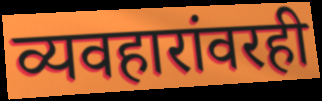
व्यवहारांवरही